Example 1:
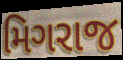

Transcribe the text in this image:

મિગરાજ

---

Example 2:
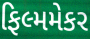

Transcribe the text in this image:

ફિલ્મમેકર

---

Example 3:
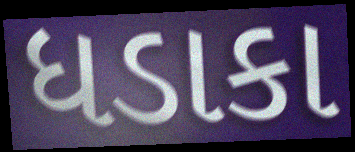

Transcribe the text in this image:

ધડાકા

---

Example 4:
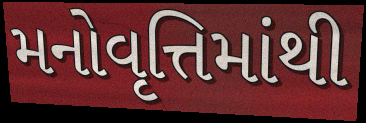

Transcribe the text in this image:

મનોવૃત્તિમાંથી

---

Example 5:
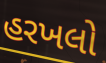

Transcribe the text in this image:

હરખલો